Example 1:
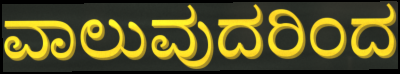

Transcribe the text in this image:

ವಾಲುವುದರಿಂದ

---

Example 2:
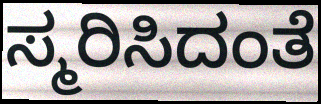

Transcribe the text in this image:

ಸ್ಮರಿಸಿದಂತೆ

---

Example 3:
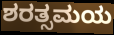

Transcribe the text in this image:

ಶರತ್ಸಮಯ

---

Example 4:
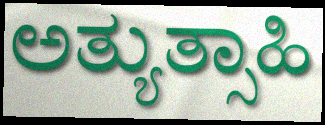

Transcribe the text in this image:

ಅತ್ಯುತ್ಸಾಹಿ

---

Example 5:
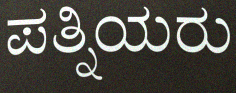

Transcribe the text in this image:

ಪತ್ನಿಯರು